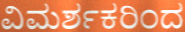
ವಿಮರ್ಶಕರಿಂದ